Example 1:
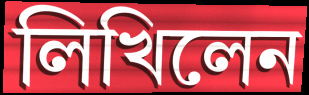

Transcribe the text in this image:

লিখিলেন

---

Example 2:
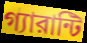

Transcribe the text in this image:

গ্যারান্টি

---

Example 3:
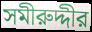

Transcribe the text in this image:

সমীরুদ্দীর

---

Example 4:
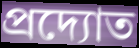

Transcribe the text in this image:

প্রদ্যোত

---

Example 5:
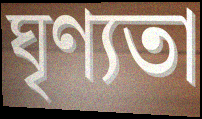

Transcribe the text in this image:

ঘৃণ্যতা